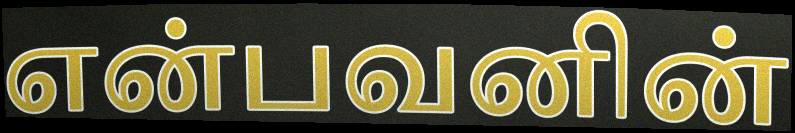
என்பவனின்